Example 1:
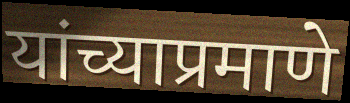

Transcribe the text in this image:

यांच्याप्रमाणे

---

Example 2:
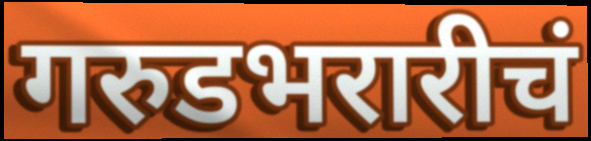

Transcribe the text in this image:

गरुडभरारीचं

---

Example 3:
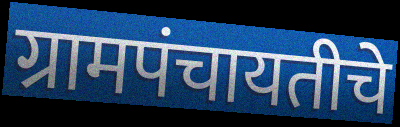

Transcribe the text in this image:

ग्रामपंचायतीचे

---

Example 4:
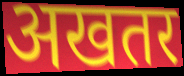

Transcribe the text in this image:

अखतर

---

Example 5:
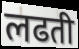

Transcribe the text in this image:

लढती